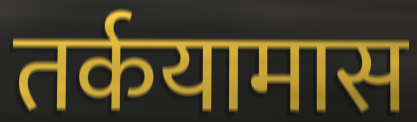
तर्कयामास